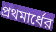
প্রথমার্ধের